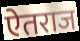
ऐतराज